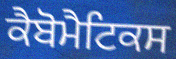
ਕੈਬੋਮੈਟਿਕਸ